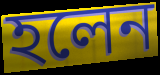
হলেন